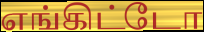
எங்கிட்டோ